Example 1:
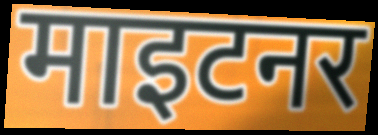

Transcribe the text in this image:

माइटनर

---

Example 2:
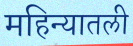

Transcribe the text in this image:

महिन्यातली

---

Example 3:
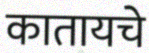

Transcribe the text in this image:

कातायचे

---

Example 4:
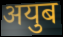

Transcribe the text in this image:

अयुब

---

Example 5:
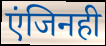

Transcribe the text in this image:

एंजिनही